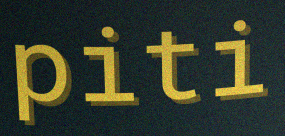
piti